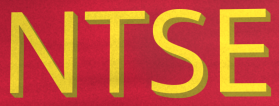
NTSE